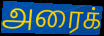
அரைக்